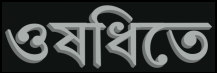
ওষধিতে